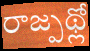
రాజ్పథ్లో